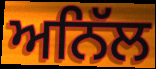
ਅਨਿੱਲ